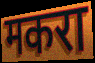
मकरा